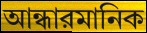
আন্ধারমানিক